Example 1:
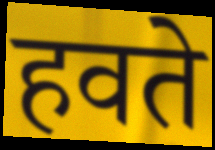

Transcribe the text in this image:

हवते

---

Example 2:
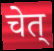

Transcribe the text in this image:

चेत्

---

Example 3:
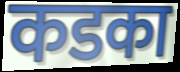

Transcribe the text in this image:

कडका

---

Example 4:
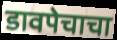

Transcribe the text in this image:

डावपेचाचा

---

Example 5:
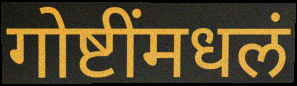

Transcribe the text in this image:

गोष्टींमधलं